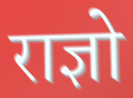
राज्ञो